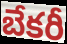
బేకరీ